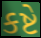
કષ્ટે